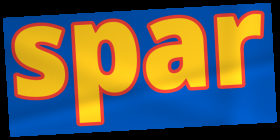
spar